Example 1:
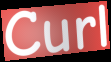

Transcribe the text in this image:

Curl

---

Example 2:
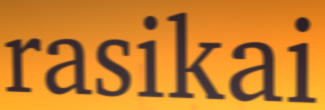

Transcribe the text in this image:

rasikai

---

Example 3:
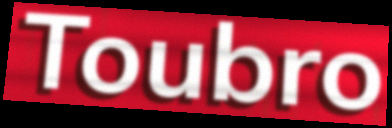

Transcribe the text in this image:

Toubro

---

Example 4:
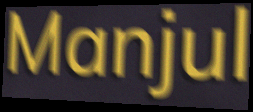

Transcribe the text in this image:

Manjul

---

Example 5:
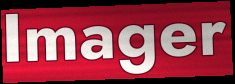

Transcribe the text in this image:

Imager